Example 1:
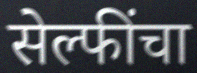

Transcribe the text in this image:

सेल्फींचा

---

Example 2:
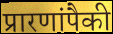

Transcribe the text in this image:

प्रारणांपैकी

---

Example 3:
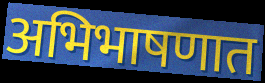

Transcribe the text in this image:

अभिभाषणात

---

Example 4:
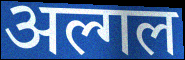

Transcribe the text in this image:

अल्गल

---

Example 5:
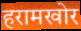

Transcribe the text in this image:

हरामखोर